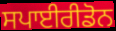
ਸਪਾਈਰੀਡੋਨ